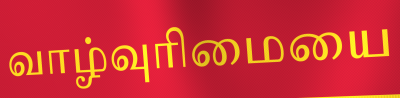
வாழ்வுரிமையை